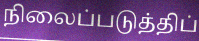
நிலைப்படுத்திப்